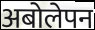
अबोलेपन